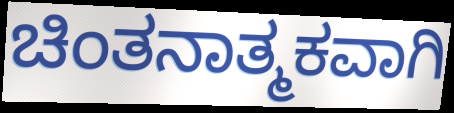
ಚಿಂತನಾತ್ಮಕವಾಗಿ